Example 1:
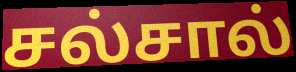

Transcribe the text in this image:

சல்சால்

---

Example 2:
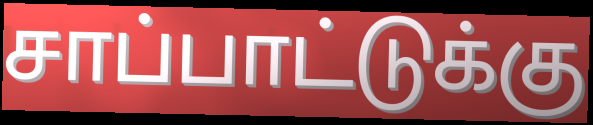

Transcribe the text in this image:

சாப்பாட்டுக்கு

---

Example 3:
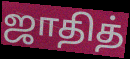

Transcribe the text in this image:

ஜாதித்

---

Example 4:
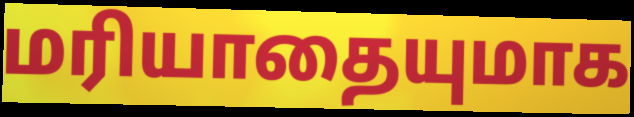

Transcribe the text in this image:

மரியாதையுமாக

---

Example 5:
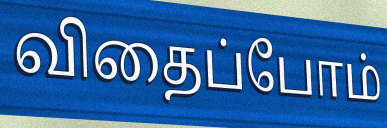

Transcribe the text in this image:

விதைப்போம்